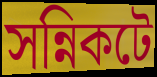
সন্নিকটে